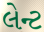
લેન્ટ